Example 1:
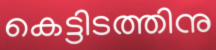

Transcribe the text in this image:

കെട്ടിടത്തിനു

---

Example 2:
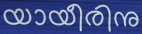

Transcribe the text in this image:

യായീരിനു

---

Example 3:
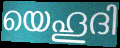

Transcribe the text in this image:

യെഹൂദി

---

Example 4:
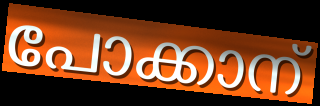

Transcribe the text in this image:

പോക്കാന്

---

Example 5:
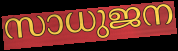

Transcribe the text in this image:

സാധുജന